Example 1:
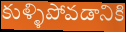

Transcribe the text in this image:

కుళ్ళిపోవడానికి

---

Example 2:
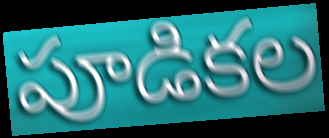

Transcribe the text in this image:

పూడికల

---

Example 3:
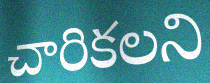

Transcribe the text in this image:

చారికలని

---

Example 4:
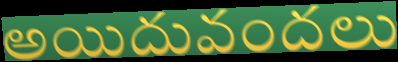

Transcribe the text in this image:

అయిదువందలు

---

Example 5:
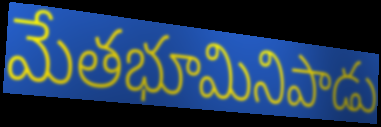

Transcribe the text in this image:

మేతభూమినిపాడు